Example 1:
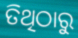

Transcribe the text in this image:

ତିଥିଠାରୁ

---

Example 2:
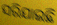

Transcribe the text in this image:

ସରିଯାଇଛି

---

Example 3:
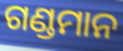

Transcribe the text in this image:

ଗଣ୍ଡମାନ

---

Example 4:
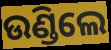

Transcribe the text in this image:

ଉଣ୍ଡିଲେ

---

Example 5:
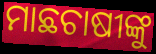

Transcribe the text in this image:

ମାଛଚାଷୀଙ୍କୁ